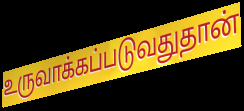
உருவாக்கப்படுவதுதான்